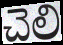
చెలి